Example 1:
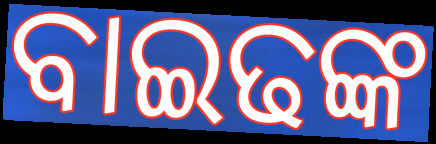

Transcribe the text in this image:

ବାଇଢଙ୍କ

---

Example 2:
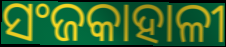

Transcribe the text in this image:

ସଂଜକାହାଳୀ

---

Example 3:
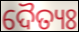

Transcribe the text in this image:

ଦୈତ୍ୟଃ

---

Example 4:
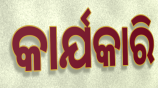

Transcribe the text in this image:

କାର୍ଯକାରି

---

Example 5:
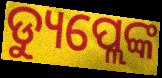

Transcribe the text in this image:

ଡ୍ୟୁପ୍ଲେଙ୍କ